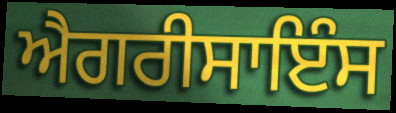
ਐਗਰੀਸਾਇੰਸ